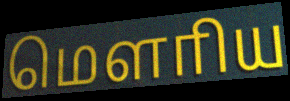
மௌரிய